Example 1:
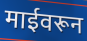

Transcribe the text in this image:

माईवरून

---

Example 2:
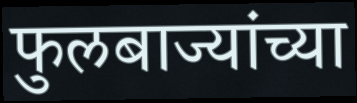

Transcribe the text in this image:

फुलबाज्यांच्या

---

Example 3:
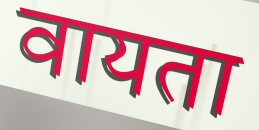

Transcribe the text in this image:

वायता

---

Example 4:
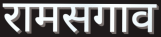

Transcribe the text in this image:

रामसगाव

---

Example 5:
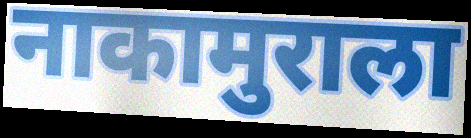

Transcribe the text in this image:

नाकामुराला